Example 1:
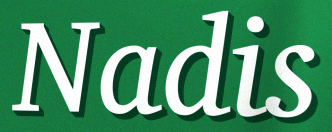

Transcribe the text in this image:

Nadis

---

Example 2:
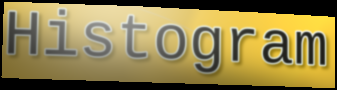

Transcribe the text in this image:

Histogram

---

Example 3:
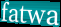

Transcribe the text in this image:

fatwa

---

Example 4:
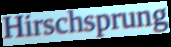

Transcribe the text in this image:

Hirschsprung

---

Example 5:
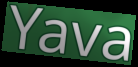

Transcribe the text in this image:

Yava